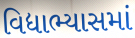
વિદ્યાભ્યાસમાં